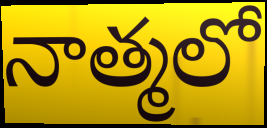
నాత్మలో